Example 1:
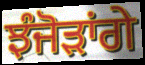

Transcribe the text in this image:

ਝੰਜੋੜਾਂਗੇ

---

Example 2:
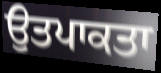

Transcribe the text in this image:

ਉਤਪਾਕਤਾ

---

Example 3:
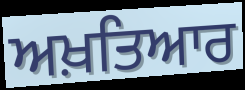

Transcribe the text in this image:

ਅਖ਼ਤਿਆਰ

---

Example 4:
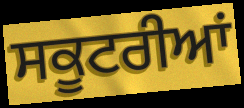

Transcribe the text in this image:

ਸਕੂਟਰੀਆਂ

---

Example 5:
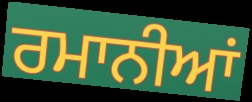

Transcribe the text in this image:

ਰਮਾਨੀਆਂ